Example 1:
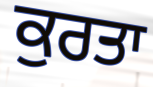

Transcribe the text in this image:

ਕੁਰਤਾ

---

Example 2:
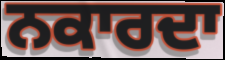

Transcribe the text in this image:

ਨਕਾਰਦਾ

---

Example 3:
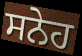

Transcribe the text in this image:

ਸਨੇਹ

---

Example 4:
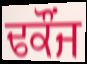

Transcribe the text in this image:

ਢਕੌਂਜ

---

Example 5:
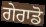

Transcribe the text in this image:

ਗੇਰਾਡੋ